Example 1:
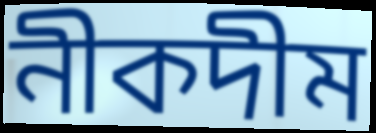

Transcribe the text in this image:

নীকদীম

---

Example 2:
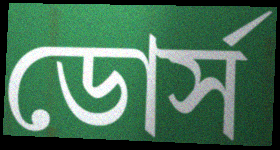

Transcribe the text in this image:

ডোর্স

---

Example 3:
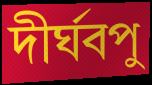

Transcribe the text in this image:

দীর্ঘবপু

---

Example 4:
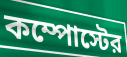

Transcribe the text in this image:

কম্পোস্টের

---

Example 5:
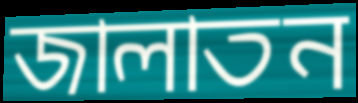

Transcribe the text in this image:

জালাতন